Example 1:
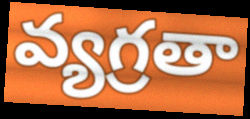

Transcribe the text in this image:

వ్యగ్రతా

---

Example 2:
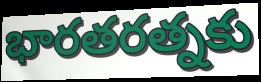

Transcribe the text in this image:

భారతరత్నకు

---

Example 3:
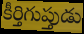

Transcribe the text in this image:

కీర్తిగుప్తుడు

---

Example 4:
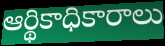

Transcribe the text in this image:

ఆర్థికాధికారాలు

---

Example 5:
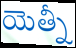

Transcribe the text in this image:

యెత్నీ